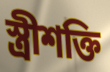
স্ত্রীশক্তি